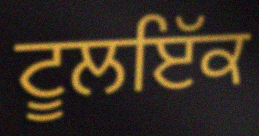
ਟੂਲਇੱਕ